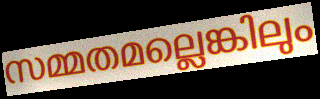
സമ്മതമല്ലെങ്കിലും